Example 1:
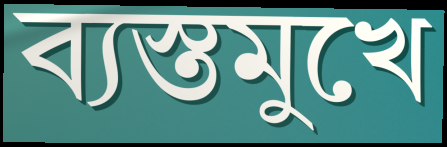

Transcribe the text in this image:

ব্যস্তমুখে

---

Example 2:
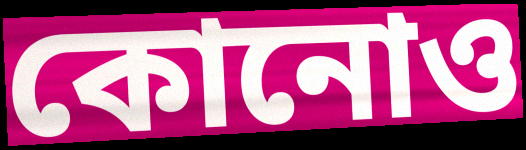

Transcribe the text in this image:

কোনোও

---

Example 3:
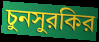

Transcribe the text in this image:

চুনসুরকির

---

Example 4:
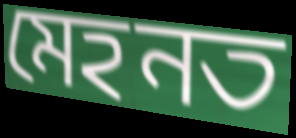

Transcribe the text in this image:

মেহনত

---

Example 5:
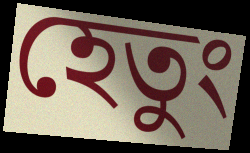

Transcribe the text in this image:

হেতুং